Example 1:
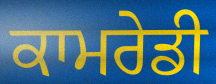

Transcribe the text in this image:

ਕਾਮਰੇਡੀ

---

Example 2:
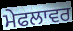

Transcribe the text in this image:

ਮੇਫਲਾਵਰ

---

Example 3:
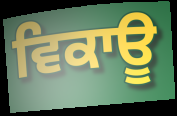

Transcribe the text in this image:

ਵਿਕਾਊ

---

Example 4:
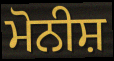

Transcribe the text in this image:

ਮੋਨੀਸ਼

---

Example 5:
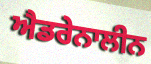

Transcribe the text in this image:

ਐਡਰੇਨਾਲੀਨ